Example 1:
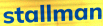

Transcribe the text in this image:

stallman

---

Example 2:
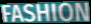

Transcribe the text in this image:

FASHION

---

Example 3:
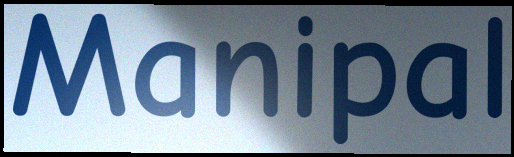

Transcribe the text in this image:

Manipal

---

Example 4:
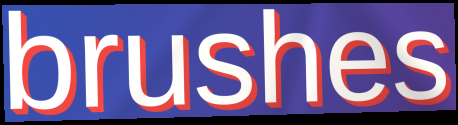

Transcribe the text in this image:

brushes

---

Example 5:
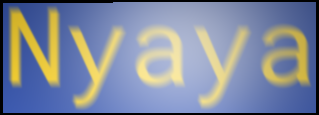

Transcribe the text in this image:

Nyaya